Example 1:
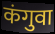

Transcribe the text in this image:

कंगुवा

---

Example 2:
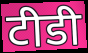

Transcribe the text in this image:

टीडी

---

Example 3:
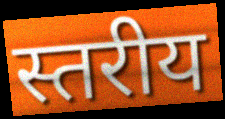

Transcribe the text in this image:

स्तरीय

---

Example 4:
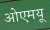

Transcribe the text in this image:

ओएमयू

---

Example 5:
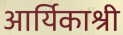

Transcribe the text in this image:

आर्यिकाश्री